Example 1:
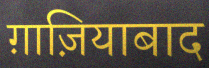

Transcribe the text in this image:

ग़ाज़ियाबाद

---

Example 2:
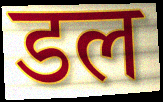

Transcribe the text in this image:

डल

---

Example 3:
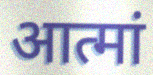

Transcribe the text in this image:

आत्मां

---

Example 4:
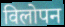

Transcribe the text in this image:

विलोपन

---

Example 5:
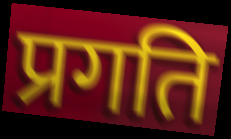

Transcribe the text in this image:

प्रगति